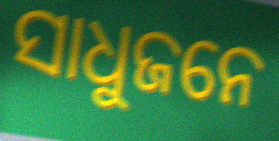
ସାଧୁଜନେ